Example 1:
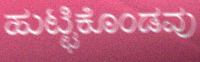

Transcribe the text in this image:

ಹುಟ್ಟಿಕೊಂಡವು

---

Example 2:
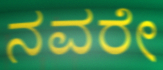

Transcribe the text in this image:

ನವರೇ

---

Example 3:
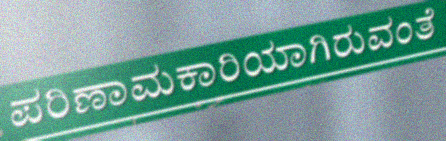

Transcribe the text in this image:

ಪರಿಣಾಮಕಾರಿಯಾಗಿರುವಂತೆ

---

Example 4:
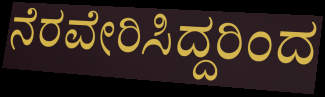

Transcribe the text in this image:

ನೆರವೇರಿಸಿದ್ದರಿಂದ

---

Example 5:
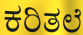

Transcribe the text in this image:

ಕರಿತಲೆ